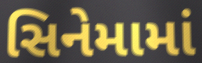
સિનેમામાં